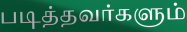
படித்தவர்களும்